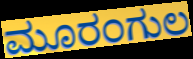
ಮೂರಂಗುಲ